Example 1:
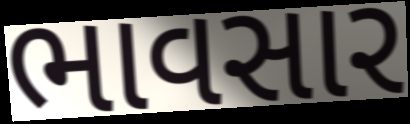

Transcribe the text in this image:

ભાવસાર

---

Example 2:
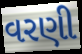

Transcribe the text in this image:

વરણી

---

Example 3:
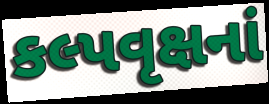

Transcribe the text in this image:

કલ્પવૃક્ષનાં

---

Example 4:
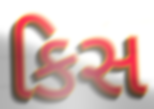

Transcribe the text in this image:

કિસ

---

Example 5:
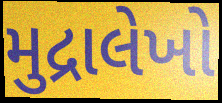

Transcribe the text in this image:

મુદ્રાલેખો